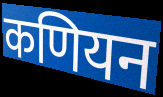
कणियन